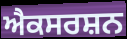
ਐਕਸਰਸ਼ਨ